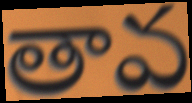
తావ